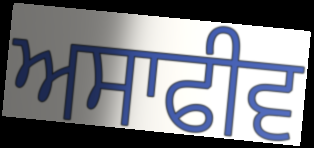
ਅਸਾਫੀਵ